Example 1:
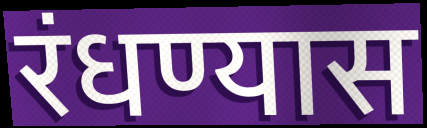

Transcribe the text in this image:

रंधण्यास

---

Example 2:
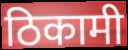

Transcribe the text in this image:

ठिकामी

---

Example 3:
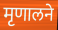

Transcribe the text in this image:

मृणालने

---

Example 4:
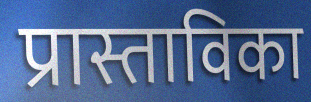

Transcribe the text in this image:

प्रास्ताविका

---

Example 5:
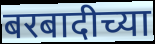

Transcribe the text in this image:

बरबादीच्या